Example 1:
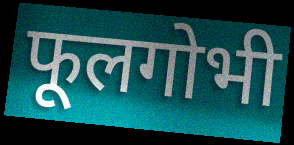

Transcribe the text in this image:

फूलगोभी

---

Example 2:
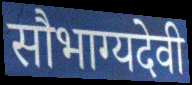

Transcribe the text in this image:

सौभाग्यदेवी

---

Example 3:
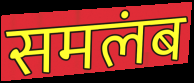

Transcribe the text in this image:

समलंब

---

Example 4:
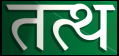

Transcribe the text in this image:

तत्थ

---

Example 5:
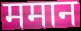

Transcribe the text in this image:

ममान